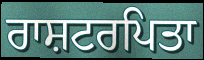
ਰਾਸ਼ਟਰਪਿਤਾ